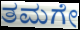
ತಮಗೇ